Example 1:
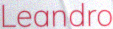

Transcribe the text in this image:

Leandro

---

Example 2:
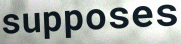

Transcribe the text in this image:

supposes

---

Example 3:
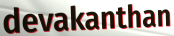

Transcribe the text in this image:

devakanthan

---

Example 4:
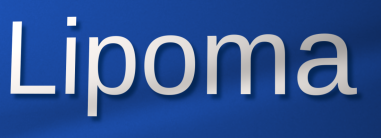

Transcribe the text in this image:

Lipoma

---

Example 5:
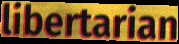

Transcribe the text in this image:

libertarian